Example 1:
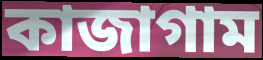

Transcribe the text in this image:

কাজাগাম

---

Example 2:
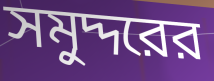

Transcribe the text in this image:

সমুদ্দরের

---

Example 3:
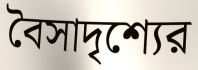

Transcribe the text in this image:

বৈসাদৃশ্যের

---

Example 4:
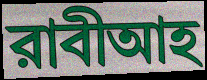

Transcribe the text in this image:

রাবীআহ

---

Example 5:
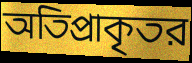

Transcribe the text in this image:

অতিপ্রাকৃতর